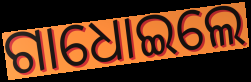
ଗାଧୋଇଲେ